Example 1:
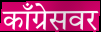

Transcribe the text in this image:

काँग्रेसवर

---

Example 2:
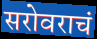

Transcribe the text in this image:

सरोवराचं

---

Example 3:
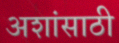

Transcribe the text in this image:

अशांसाठी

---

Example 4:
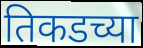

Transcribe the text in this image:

तिकडच्या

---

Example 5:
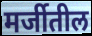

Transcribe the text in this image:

मर्जीतील